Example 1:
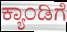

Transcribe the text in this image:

ಕ್ಯಾಂಡಿಗೆ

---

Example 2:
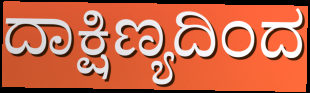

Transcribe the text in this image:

ದಾಕ್ಷಿಣ್ಯದಿಂದ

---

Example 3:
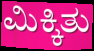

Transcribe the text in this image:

ಮಿಕ್ಕಿತು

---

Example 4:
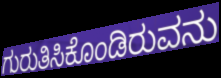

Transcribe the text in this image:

ಗುರುತಿಸಿಕೊಂಡಿರುವನು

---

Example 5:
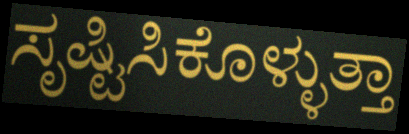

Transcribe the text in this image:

ಸೃಷ್ಟಿಸಿಕೊಳ್ಳುತ್ತಾ